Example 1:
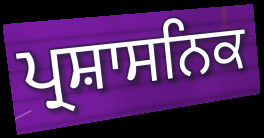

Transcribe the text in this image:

ਪ੍ਰਸ਼ਾਸਨਿਕ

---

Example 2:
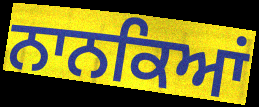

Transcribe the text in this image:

ਨਾਨਕਿਆਂ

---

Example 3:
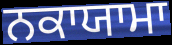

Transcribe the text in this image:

ਨਕਾਯਾਮਾ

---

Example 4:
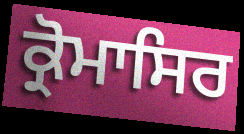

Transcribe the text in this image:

ਕ੍ਰੋਮਾਸਿਰ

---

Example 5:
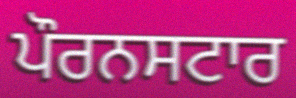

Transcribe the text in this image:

ਪੌਰਨਸਟਾਰ